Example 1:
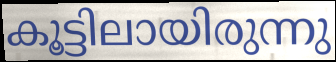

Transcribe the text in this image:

കൂട്ടിലായിരുന്നു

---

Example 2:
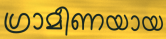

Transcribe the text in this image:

ഗ്രാമീണയായ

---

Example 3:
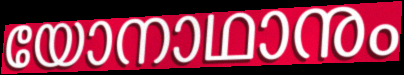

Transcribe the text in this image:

യോനാഥാനും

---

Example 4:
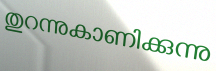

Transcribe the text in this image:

തുറന്നുകാണിക്കുന്നു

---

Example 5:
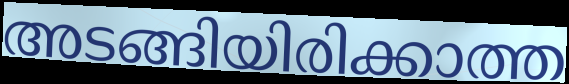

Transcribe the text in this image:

അടങ്ങിയിരിക്കാത്ത